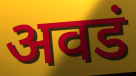
अवडं